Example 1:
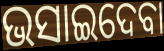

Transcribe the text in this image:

ଭସାଇଦେବା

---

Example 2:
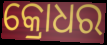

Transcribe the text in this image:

କ୍ରୋଧର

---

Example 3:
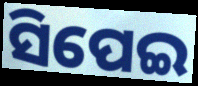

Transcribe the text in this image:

ସିପେଇ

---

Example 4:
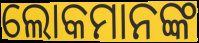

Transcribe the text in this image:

ଲୋକମାନଙ୍କ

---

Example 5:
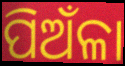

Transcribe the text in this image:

ପିଅଁଳା